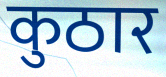
कुठार